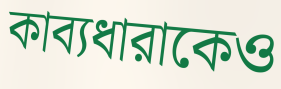
কাব্যধারাকেও